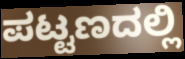
ಪಟ್ಟಣದಲ್ಲಿ